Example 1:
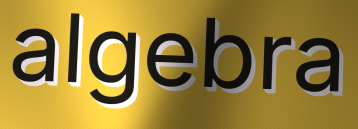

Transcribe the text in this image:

algebra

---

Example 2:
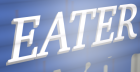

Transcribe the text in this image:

EATER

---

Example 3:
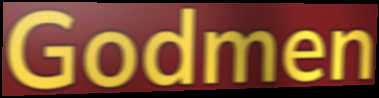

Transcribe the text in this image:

Godmen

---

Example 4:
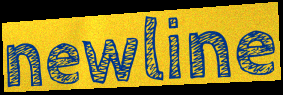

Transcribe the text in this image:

newline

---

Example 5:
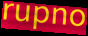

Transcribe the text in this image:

rupno